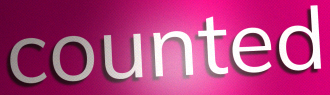
counted